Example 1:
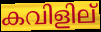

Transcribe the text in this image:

കവിളില്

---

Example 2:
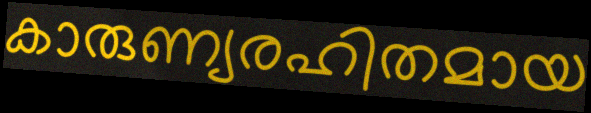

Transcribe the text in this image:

കാരുണ്യരഹിതമായ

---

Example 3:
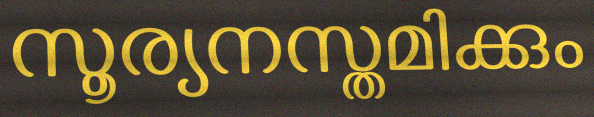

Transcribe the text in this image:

സൂര്യനസ്തമിക്കും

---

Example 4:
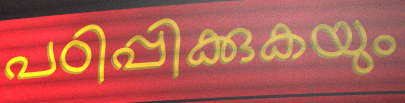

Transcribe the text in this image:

പഠിപ്പിക്കുകയും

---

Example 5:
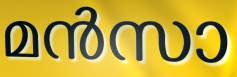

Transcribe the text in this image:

മൻസാ